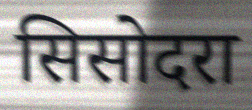
सिसोदरा